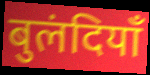
बुलंदियाँ